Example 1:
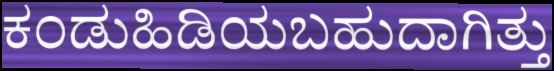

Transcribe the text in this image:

ಕಂಡುಹಿಡಿಯಬಹುದಾಗಿತ್ತು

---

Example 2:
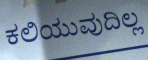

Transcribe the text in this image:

ಕಲಿಯುವುದಿಲ್ಲ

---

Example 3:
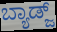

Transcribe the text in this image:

ಬ್ಯಾಡ್ಜ್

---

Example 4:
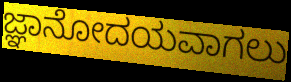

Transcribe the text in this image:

ಜ್ಞಾನೋದಯವಾಗಲು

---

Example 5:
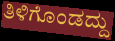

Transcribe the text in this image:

ತಿಳಿಗೊಂಡದ್ದು